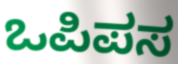
ಒಪಿಪಸ